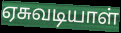
ஏசுவடியாள்